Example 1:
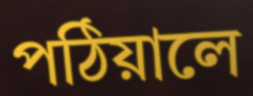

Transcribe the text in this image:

পঠিয়ালে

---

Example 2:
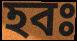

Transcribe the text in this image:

হবঃ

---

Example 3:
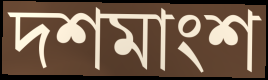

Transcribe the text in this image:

দশমাংশ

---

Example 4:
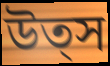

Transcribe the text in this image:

উত্স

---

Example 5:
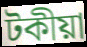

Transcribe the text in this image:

টকীয়া